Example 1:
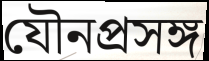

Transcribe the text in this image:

যৌনপ্রসঙ্গ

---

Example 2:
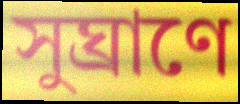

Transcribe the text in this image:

সুঘ্রাণে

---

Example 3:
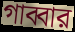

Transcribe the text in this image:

গাব্বার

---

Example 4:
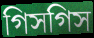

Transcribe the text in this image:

গিসগিস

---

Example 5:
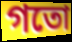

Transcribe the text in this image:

গতো